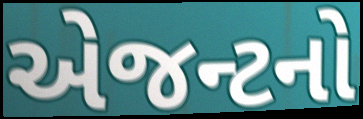
એજન્ટનો